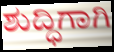
ಶುದ್ಧಿಗಾಗಿ